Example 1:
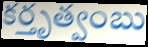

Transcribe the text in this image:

కర్తృత్వంబు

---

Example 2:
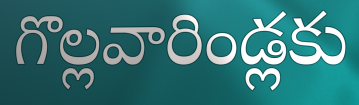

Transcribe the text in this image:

గొల్లవారిండ్లకు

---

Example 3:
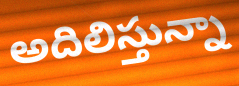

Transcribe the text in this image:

అదిలిస్తున్నా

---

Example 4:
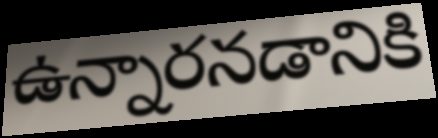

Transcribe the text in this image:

ఉన్నారనడానికి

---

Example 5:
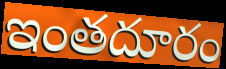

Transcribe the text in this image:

ఇంతదూరం